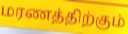
மரணத்திற்கும்